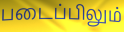
படைப்பிலும்